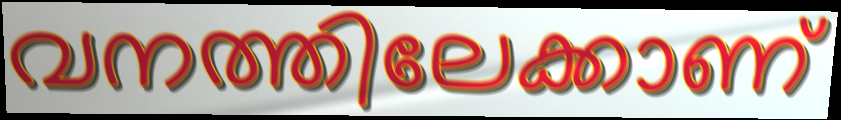
വനത്തിലേക്കാണ്